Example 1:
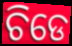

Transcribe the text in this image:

ଚିଡେ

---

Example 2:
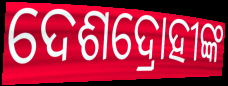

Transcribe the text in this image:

ଦେଶଦ୍ରୋହୀଙ୍କ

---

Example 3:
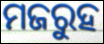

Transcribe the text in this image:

ମଜରୁହ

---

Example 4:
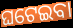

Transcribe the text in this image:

ଘଟେଇବା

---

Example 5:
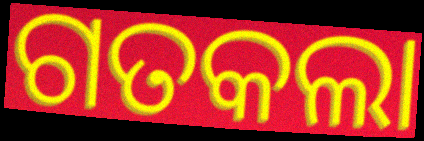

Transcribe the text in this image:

ଗତକଲା